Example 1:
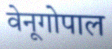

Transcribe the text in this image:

वेनूगोपाल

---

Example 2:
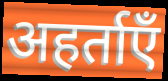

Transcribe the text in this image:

अहर्ताएँ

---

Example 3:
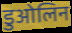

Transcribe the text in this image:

डुओलिन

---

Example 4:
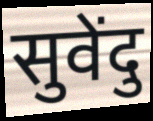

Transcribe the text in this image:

सुवेंदु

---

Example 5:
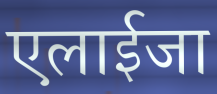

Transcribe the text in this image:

एलाईजा